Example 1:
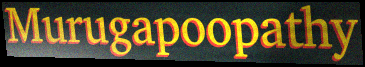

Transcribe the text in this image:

Murugapoopathy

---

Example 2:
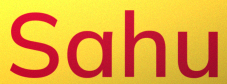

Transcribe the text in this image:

Sahu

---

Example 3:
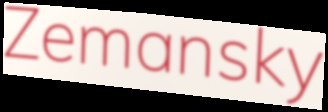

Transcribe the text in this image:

Zemansky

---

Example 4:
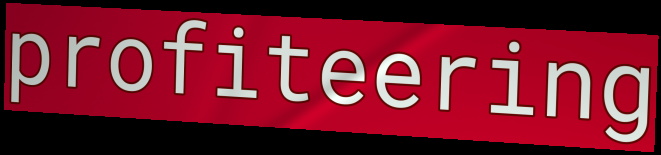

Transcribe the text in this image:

profiteering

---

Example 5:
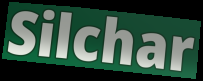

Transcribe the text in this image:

Silchar